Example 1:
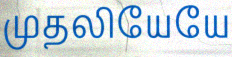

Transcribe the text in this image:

முதலியேயே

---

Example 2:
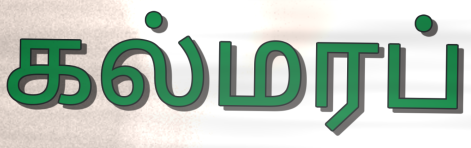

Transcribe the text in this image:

கல்மரப்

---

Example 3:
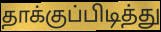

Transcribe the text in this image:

தாக்குப்பிடித்து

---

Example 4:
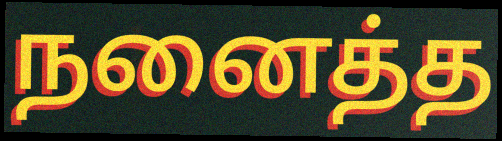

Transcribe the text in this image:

நனைத்த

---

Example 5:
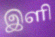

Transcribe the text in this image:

இளி